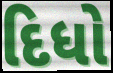
દિધો